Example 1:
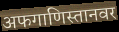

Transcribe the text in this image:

अफगाणिस्तानवर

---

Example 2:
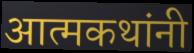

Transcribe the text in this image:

आत्मकथांनी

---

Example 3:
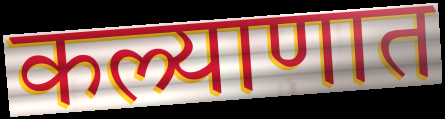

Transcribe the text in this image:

कल्याणात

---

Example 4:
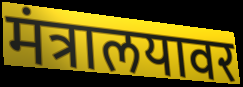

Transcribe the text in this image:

मंत्रालयावर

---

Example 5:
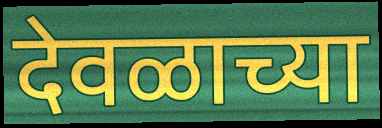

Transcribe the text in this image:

देवळाच्या